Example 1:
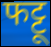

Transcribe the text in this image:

फट्टू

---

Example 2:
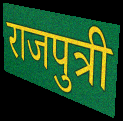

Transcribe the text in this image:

राजपुत्री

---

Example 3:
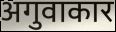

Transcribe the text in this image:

अगुवाकार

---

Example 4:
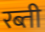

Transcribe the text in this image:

रब्ती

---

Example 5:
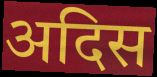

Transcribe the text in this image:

अदिस